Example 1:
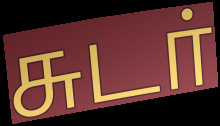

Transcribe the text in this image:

சுடர்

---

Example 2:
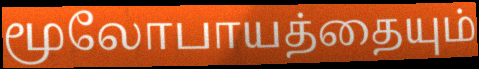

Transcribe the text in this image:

மூலோபாயத்தையும்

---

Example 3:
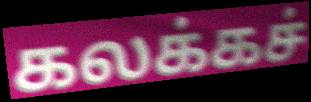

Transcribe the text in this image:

கலக்கச்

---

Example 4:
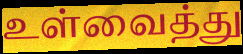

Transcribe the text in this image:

உள்வைத்து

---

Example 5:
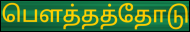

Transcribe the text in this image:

பௌத்தத்தோடு